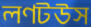
লণটউস